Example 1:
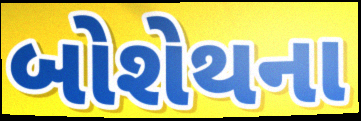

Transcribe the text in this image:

બોશેથના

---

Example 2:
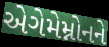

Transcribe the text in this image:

એગેમેમ્નોનને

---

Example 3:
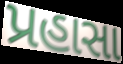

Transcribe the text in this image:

પ્રહાસા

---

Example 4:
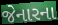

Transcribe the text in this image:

જેનારના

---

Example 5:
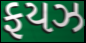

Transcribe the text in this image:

ફયઝ